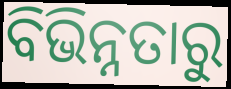
ବିଭିନ୍ନତାରୁ